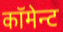
कॉमेन्ट